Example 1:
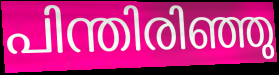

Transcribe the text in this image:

പിന്തിരിഞ്ഞു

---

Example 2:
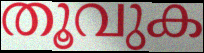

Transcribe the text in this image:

തൂവുക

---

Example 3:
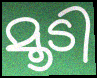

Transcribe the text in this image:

മൂടി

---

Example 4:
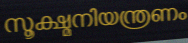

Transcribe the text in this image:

സൂക്ഷ്മനിയന്ത്രണം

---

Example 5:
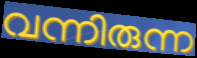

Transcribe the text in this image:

വന്നിരുന്ന